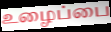
உழைப்பை